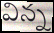
విన్న